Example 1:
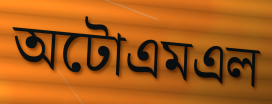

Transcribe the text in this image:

অটোএমএল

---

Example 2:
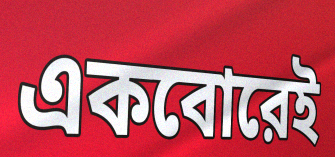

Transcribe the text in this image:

একবোরেই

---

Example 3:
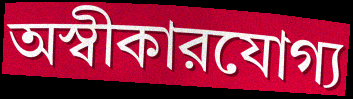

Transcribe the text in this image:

অস্বীকারযোগ্য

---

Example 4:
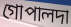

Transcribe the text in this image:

গোপালদা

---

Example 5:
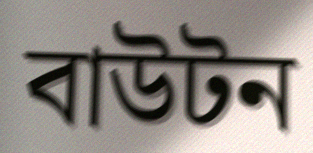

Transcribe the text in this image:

বাউটন